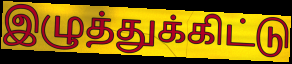
இழுத்துக்கிட்டு